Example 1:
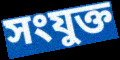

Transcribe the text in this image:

সংযুক্ত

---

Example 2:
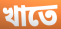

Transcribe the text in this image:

খাতে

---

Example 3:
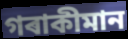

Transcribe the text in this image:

গৰাকীমান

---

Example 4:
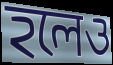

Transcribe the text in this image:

হলেও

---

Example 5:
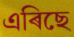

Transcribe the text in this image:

এৰিছে